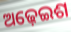
ଅଢ଼େଇଶ